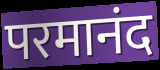
परमानंद